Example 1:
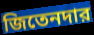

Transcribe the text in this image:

জিতেনদার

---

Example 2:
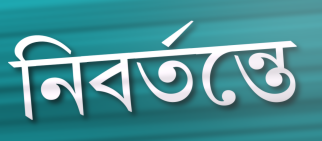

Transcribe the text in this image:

নিবর্তন্তে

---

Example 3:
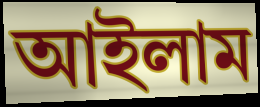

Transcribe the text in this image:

আইলাম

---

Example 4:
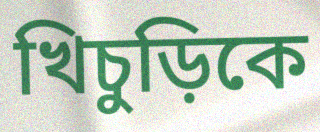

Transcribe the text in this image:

খিচুড়িকে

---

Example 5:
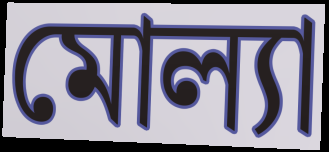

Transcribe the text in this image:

মোল্যা